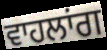
ਵਾਹਲਾਂਗ